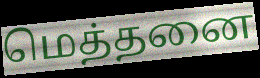
மெத்தனை